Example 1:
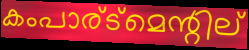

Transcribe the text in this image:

കംപാര്ട്മെന്റില്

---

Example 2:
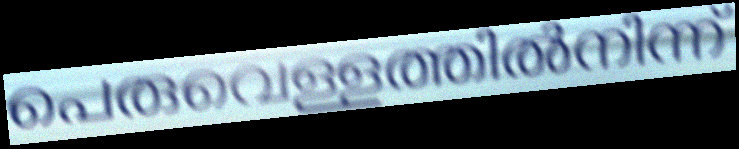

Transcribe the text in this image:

പെരുവെള്ളത്തിൽനിന്ന്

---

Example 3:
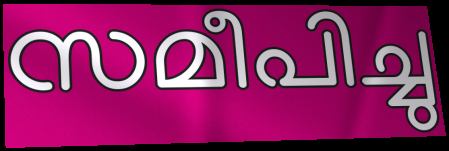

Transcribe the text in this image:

സമീപിച്ചു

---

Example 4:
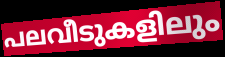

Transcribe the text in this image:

പലവീടുകളിലും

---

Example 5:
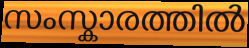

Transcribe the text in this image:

സംസ്കാരത്തിൽ